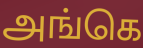
அங்கெ